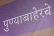
पुण्याबाहेरचे